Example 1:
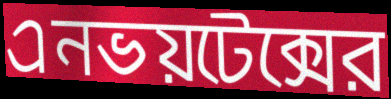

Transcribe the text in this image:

এনভয়টেক্সের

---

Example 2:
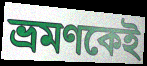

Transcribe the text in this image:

ভ্রমণকেই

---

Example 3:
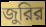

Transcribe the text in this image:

জুরির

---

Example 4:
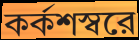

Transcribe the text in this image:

কর্কশস্বরে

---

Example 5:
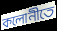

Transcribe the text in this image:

কলোনীতে